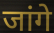
जांगे